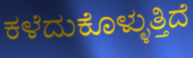
ಕಳೆದುಕೊಳ್ಳುತ್ತಿದೆ